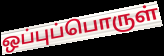
ஒப்புப்பொருள்